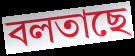
বলতাছে